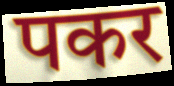
पकर